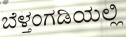
ಬೆಳ್ತಂಗಡಿಯಲ್ಲಿ